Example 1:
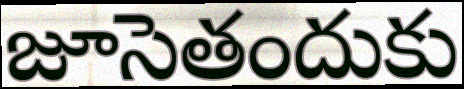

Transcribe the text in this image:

జూసెతందుకు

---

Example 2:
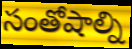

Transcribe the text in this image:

సంతోషాల్ని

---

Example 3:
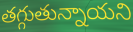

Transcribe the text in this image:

తగ్గుతున్నాయని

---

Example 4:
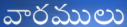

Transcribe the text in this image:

వారములు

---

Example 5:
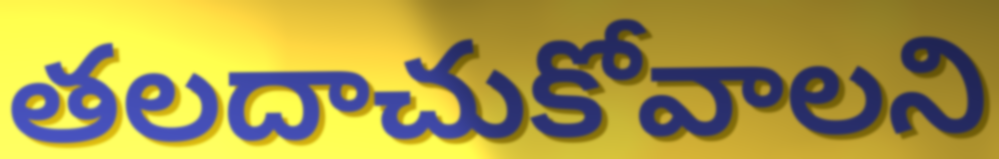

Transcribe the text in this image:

తలదాచుకోవాలని